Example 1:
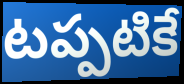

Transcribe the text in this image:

టప్పటికే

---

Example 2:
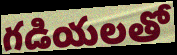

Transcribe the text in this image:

గడియలతో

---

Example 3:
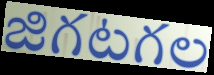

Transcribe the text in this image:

జిగటగల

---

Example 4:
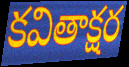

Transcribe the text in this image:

కవితాక్షర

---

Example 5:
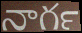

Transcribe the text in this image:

నాగర్‍